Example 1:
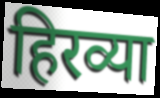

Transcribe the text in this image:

हिरव्या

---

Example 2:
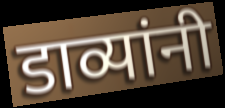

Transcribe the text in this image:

डाव्यांनी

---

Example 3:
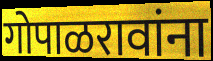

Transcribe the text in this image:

गोपाळरावांना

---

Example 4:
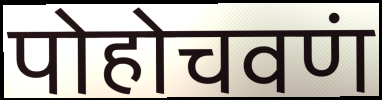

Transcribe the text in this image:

पोहोचवणं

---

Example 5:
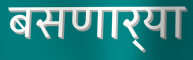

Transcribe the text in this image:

बसणार्‍या